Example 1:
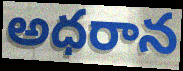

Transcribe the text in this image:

అధరాన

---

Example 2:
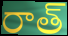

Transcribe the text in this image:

రాత్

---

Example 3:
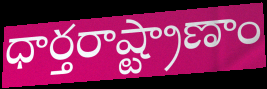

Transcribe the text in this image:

ధార్తరాష్ట్రాణాం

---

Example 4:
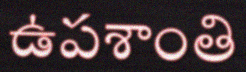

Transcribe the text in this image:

ఉపశాంతి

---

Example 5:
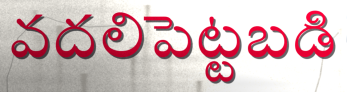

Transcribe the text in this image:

వదలిపెట్టబడి